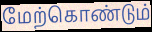
மேற்கொண்டும்